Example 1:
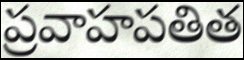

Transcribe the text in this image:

ప్రవాహపతిత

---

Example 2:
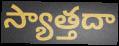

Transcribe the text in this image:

స్యాత్తదా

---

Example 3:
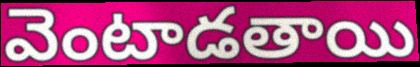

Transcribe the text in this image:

వెంటాడతాయి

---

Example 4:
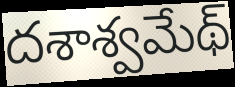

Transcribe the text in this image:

దశాశ్వమేథ్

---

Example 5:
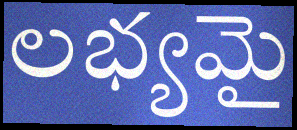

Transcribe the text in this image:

లభ్యమై